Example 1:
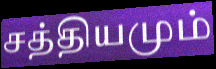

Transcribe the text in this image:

சத்தியமும்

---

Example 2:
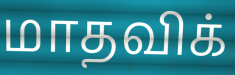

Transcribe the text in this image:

மாதவிக்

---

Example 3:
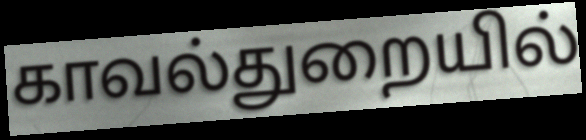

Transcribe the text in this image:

காவல்துறையில்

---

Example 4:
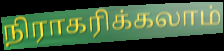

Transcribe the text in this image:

நிராகரிக்கலாம்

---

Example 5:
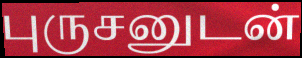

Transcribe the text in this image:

புருசனுடன்